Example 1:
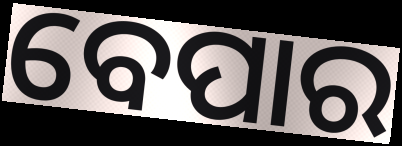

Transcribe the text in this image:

ବେପାର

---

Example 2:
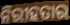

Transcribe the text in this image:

ନିରୀହତାର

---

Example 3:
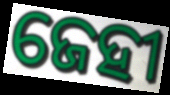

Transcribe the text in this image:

ଜେହୀ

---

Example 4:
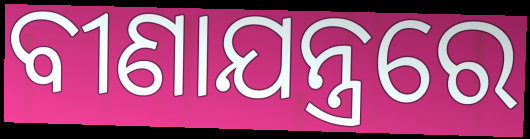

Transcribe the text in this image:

ବୀଣାଯନ୍ତ୍ରରେ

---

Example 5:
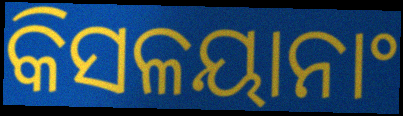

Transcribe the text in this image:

କିସଳୟାନାଂ